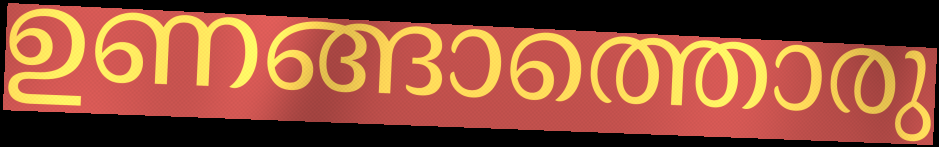
ഉണങ്ങാത്തൊരു